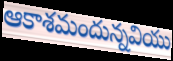
ఆకాశమందున్నవియు